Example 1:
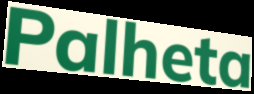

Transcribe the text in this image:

Palheta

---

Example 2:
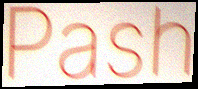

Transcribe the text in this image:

Pash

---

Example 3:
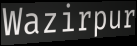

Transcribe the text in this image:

Wazirpur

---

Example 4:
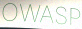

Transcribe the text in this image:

OWASP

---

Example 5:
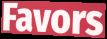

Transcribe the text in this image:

Favors